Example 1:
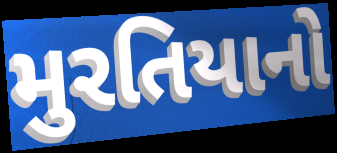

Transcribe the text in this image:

મુરતિયાનો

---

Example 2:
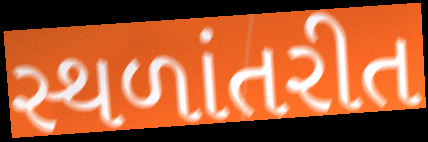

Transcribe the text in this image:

સ્થળાંતરીત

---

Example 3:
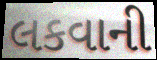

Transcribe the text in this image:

લકવાની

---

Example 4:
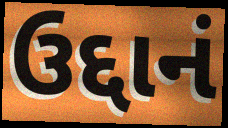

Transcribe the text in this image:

ઉદ્દાનં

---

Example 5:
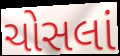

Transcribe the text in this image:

ચોસલાં